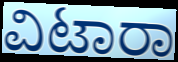
ವಿಟಾರಾ